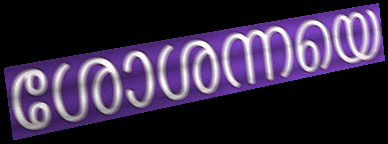
ശോശന്നയെ